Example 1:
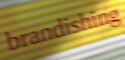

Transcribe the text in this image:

brandishing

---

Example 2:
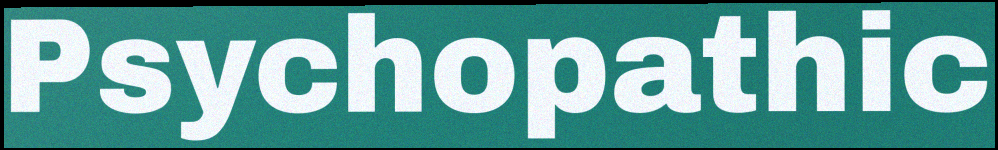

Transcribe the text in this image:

Psychopathic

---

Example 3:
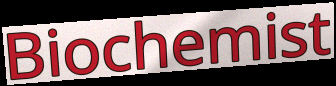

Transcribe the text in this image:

Biochemist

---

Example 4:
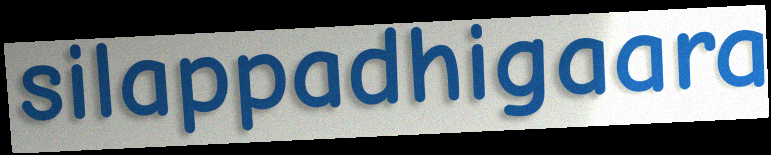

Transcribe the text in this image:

silappadhigaara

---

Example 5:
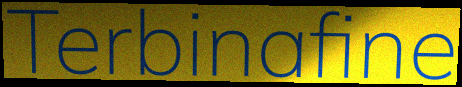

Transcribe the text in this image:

Terbinafine